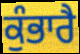
ਕੁੰਭਾਰੈ